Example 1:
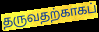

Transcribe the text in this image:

தருவதற்காகப்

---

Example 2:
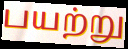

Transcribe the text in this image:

பயற்று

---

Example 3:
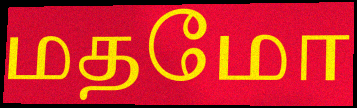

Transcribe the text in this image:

மதமோ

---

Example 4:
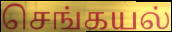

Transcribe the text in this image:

செங்கயல்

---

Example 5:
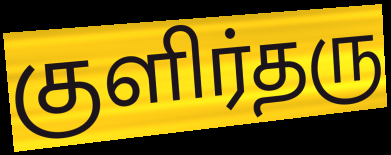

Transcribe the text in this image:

குளிர்தரு